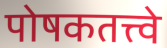
पोषकतत्त्वे